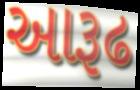
આરૂઢ